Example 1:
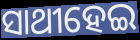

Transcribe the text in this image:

ସାଥୀହେଇ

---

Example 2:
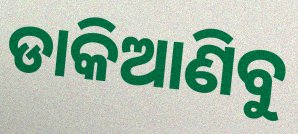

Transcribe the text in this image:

ଡାକିଆଣିବୁ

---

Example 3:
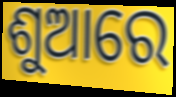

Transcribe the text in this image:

ଶୁଆରେ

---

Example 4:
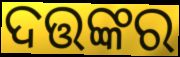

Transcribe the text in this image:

ଦତ୍ତଙ୍କର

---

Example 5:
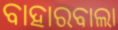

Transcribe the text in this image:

ବାହାରବାଲା